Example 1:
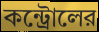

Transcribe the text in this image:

কন্ট্রোলের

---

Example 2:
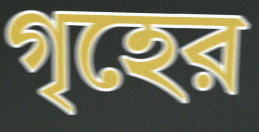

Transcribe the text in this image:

গৃহের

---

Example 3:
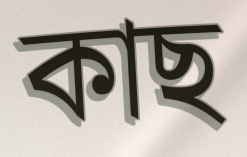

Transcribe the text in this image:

কাছ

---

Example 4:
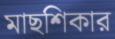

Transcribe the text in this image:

মাছশিকার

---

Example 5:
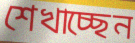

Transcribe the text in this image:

শেখাচ্ছেন